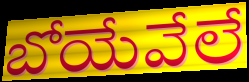
బోయేవేలే